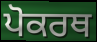
ਪੋਕਰਥ